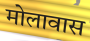
मोलावास